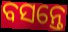
ବସନ୍ତେ